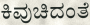
ಕಿವುಚಿದಂತೆ